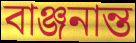
বাঞ্জনান্ত